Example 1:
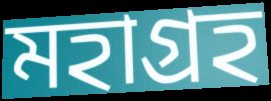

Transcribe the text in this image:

মহাগ্রহ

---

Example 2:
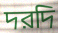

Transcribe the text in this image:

দরদি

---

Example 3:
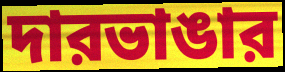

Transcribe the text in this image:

দারভাঙার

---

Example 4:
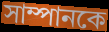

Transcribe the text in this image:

সাম্পানকে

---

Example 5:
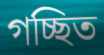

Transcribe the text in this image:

গচ্ছিত